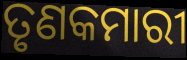
ତୃଣକମାରୀ